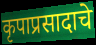
कृपाप्रसादाचे